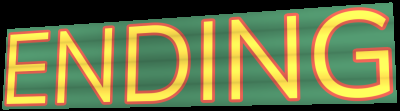
ENDING